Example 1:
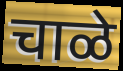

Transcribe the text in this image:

चाळे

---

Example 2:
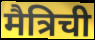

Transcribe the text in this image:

मैत्रिची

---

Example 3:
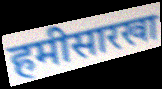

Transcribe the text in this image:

हमीसारखा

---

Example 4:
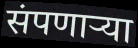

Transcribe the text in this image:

संपणार्‍या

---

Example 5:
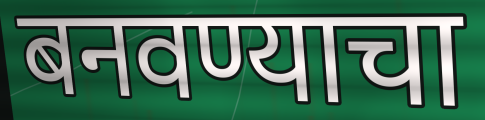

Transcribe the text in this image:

बनवण्याचा